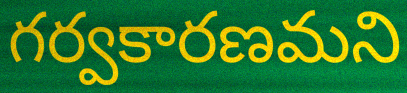
గర్వకారణమని